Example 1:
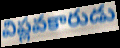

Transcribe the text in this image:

విప్లవకారుడు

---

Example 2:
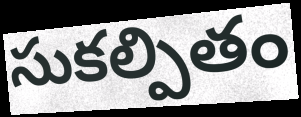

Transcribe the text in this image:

సుకల్పితం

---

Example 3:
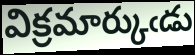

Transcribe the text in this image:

విక్రమార్కుఁడు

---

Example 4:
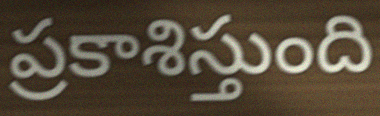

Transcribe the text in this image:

ప్రకాశిస్తుంది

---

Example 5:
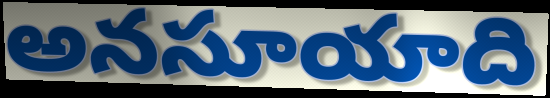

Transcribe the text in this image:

అనసూయాది